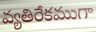
వ్యతిరేకముగా